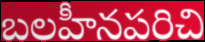
బలహీనపరిచి